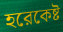
হরেকেষ্ট